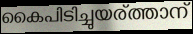
കൈപിടിച്ചുയര്ത്താന്